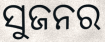
ସୁଜନର